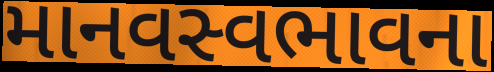
માનવસ્વભાવના